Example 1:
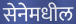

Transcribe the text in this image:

सेनेमधील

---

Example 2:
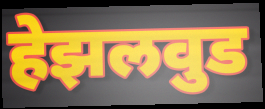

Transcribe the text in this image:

हेझलवुड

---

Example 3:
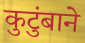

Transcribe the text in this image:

कुटुंबाने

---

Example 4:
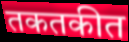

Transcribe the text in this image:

तकतकीत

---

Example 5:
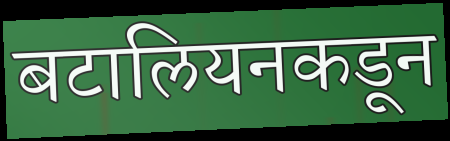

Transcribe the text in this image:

बटालियनकडून